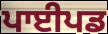
ਪਾਈਪਡ